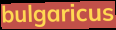
bulgaricus